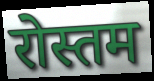
रोस्तम